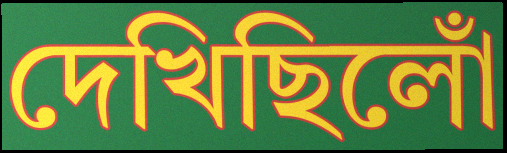
দেখিছিলোঁ